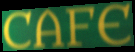
CAFE